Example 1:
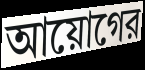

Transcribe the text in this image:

আয়োগের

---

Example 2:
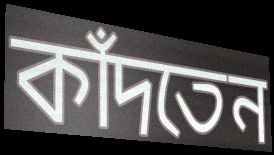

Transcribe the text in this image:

কাঁদতেন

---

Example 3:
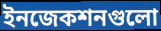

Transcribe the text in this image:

ইনজেকশনগুলো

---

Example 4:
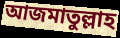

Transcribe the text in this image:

আজমাতুল্লাহ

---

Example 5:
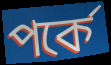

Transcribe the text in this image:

পর্কে